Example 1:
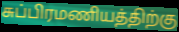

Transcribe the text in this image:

சுப்பிரமணியத்திற்கு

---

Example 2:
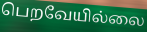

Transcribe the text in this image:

பெறவேயில்லை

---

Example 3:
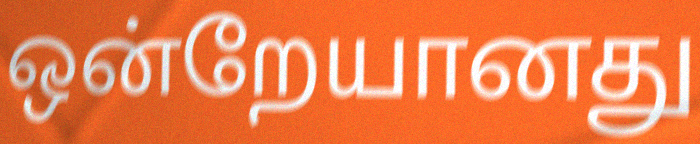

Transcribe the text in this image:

ஒன்றேயானது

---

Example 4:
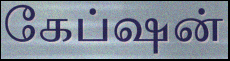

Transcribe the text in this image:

கேப்ஷன்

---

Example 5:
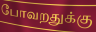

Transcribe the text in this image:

போவறதுக்கு